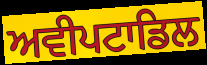
ਅਵੀਪਟਾਡਿਲ